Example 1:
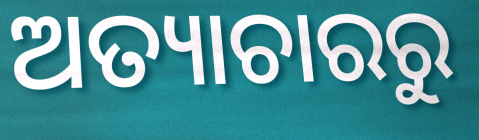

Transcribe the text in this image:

ଅତ୍ୟାଚାରରୁ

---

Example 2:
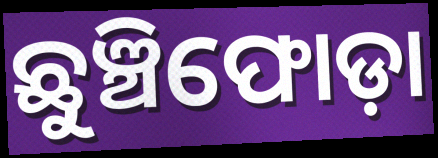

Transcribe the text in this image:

ଛୁଞ୍ଚିଫୋଡ଼ା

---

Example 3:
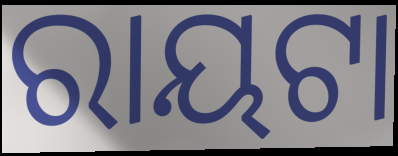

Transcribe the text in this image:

ରାୟଟା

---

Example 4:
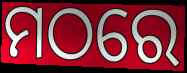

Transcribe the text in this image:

ମଠରେ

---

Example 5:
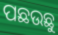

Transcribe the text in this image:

ପଛଉଛୁ